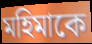
মহিমাকে